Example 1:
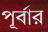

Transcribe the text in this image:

পূর্বার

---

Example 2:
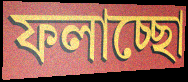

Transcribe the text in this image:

ফলাচ্ছো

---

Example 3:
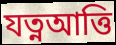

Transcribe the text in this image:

যত্নআত্তি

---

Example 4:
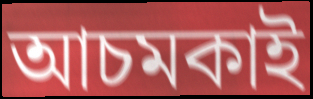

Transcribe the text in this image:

আচমকাই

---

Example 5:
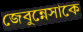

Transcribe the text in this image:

জেবুন্নেসাকে